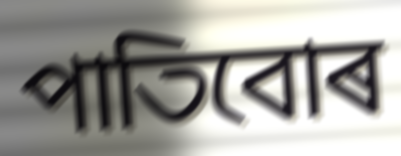
পাতিবোৰ